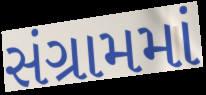
સંગ્રામમાં